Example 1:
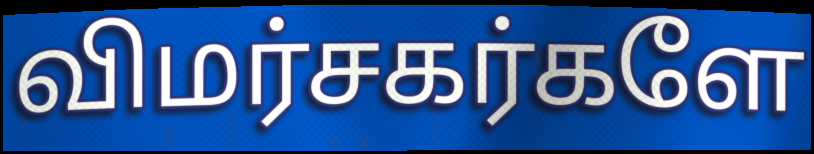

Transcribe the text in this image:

விமர்சகர்களே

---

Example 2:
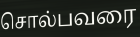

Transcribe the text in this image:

சொல்பவரை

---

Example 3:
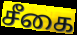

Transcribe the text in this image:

சீகை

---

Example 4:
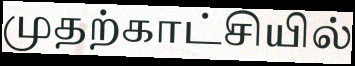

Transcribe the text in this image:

முதற்காட்சியில்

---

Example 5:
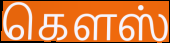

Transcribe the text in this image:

கௌஸ்